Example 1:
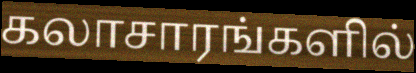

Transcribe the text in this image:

கலாசாரங்களில்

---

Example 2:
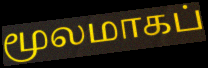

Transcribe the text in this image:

மூலமாகப்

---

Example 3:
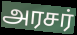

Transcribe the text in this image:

அரசர்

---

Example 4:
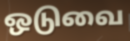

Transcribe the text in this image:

ஒடுவை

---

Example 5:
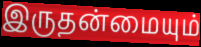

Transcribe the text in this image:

இருதன்மையும்